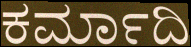
ಕರ್ಮಾದಿ